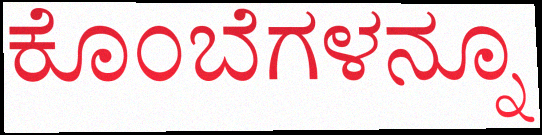
ಕೊಂಬೆಗಳನ್ನೂ